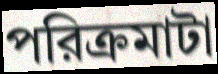
পরিক্রমাটা